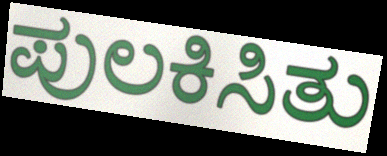
ಪುಲಕಿಸಿತು